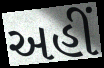
અહીં